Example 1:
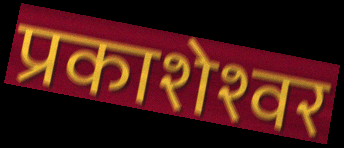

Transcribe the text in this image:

प्रकाशेश्वर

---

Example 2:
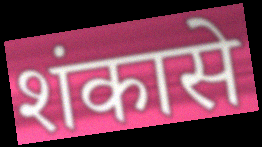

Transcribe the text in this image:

शंकासे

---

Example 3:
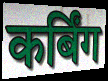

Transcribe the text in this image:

कर्बिंग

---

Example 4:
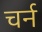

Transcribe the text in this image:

चर्न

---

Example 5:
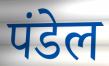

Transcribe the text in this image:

पंडेल